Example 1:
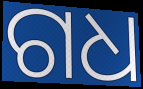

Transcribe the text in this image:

ଗଧ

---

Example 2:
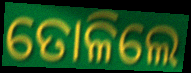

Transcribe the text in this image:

ତୋଳିଲେ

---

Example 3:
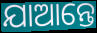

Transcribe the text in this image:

ଯାଆନ୍ତେ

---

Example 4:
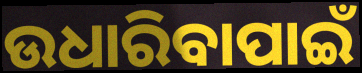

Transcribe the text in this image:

ଉଧାରିବାପାଇଁ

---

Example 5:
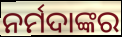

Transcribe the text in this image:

ନର୍ମଦାଙ୍କର